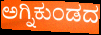
ಅಗ್ನಿಕುಂಡದ